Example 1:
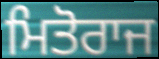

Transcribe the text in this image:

ਮਿਤੋਰਾਜ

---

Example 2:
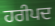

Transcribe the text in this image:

ਹਰੀਪਦ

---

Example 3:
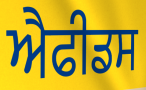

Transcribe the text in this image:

ਐਫੀਡਸ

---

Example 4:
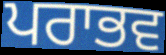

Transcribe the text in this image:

ਪਰਾਭਵ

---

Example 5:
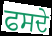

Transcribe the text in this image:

ਫਸਦੇ